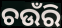
ଚଉଁରି